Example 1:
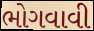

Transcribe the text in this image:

ભોગવાવી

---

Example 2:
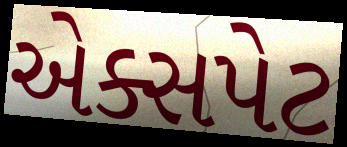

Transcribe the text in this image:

એક્સપેટ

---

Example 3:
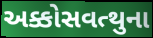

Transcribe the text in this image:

અક્કોસવત્થુના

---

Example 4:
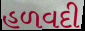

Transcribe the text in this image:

હળવદી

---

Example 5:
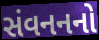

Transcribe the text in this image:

સંવનનનો